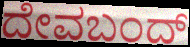
ದೇವಬಂದ್